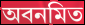
অবনমিত